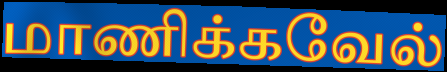
மாணிக்கவேல்